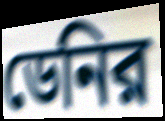
ডেনির